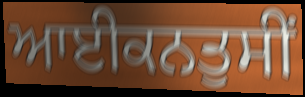
ਆਈਕਨਤੁਸੀਂ